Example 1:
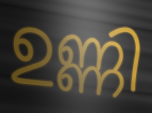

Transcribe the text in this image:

ഉണ്ണി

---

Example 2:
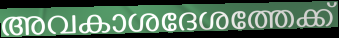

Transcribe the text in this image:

അവകാശദേശത്തേക്ക്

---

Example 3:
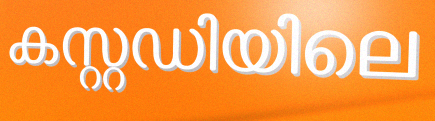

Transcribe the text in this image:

കസ്റ്റഡിയിലെ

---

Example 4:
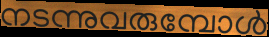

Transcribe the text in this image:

നടന്നുവരുമ്പോൾ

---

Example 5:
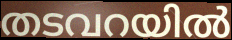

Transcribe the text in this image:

തടവറയിൽ